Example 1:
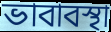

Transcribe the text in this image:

ভাবাবস্থা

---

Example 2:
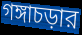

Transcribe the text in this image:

গঙ্গাচড়ার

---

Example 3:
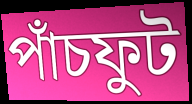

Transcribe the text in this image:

পাঁচফুট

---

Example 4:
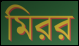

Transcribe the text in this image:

মিরর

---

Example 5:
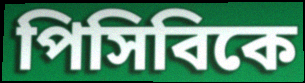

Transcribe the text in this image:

পিসিবিকে